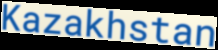
Kazakhstan